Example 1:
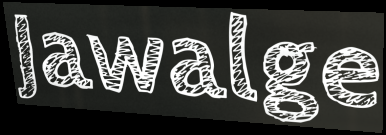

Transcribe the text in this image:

Jawalge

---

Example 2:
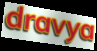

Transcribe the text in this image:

dravya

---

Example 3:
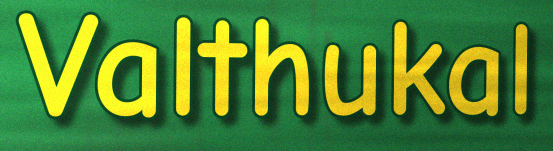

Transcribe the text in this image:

Valthukal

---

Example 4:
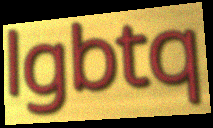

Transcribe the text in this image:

lgbtq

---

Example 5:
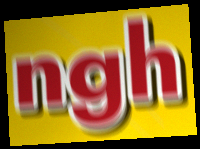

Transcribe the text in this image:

ngh